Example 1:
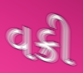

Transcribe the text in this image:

વક્રી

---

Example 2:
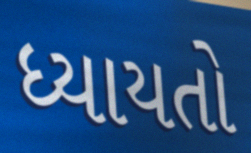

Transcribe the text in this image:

ધ્યાયતો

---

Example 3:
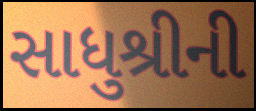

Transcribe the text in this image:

સાધુશ્રીની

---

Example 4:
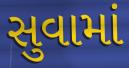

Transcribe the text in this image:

સુવામાં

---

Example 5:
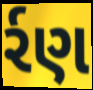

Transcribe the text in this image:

ર્રણ